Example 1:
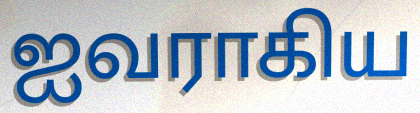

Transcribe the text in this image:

ஐவராகிய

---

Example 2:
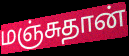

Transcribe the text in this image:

மஞ்சுதான்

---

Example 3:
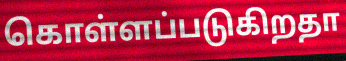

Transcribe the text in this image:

கொள்ளப்படுகிறதா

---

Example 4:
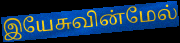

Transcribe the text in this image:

இயேசுவின்மேல்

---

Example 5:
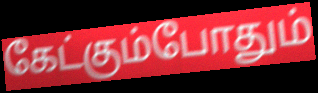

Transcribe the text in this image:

கேட்கும்போதும்